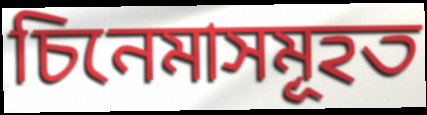
চিনেমাসমূহত